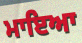
ਮਾਇਆ